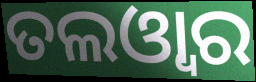
ତଲଓ୍ୱାର